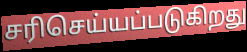
சரிசெய்யப்படுகிறது